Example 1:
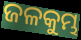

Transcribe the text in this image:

ଜଳକୁମ୍ଭ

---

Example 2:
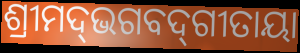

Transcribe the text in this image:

ଶ୍ରୀମଦ୍‌ଭଗବଦ୍‌ଗୀତାୟା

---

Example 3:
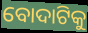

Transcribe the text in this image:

ବୋଦାଟିକୁ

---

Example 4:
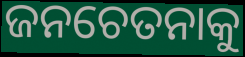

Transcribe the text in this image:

ଜନଚେତନାକୁ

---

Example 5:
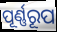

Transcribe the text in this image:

ପୂର୍ଣ୍ଣରୂପ